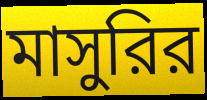
মাসুরির